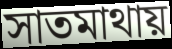
সাতমাথায়